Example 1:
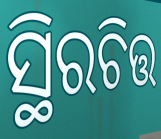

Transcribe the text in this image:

ସ୍ଥିରଚିତ୍ତ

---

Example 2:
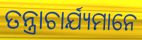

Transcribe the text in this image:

ତନ୍ତ୍ରାଚାର୍ଯ୍ୟମାନେ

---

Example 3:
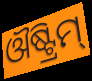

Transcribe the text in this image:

ଔଷ୍ଟ୍ରିମ୍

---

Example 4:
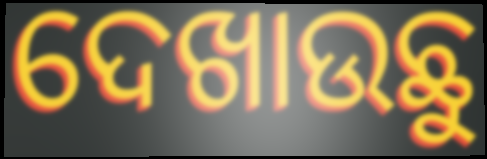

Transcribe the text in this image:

ଦେଖାଉଛୁ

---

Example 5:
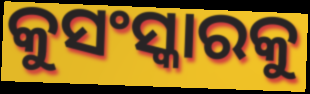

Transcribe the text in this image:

କୁସଂସ୍କାରକୁ